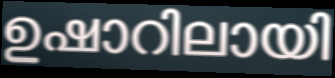
ഉഷാറിലായി